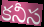
కనీస